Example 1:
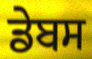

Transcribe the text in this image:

ਡੇਬਸ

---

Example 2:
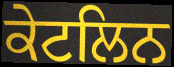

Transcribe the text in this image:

ਕੇਟਲਿਨ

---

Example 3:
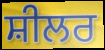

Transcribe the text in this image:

ਸ਼ੀਲਰ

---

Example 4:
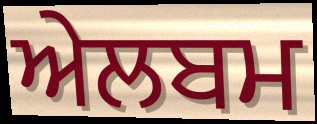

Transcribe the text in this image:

ਅੇਲਬਮ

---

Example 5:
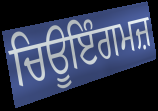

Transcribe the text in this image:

ਚਿਊਇੰਗਮਜ਼